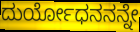
ದುರ್ಯೋಧನನನ್ನೇ